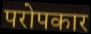
परोपकार